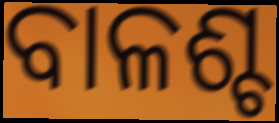
ବାଳଶ୍ଚ